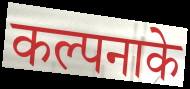
कल्पनाके